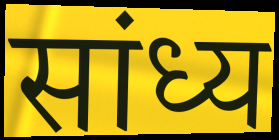
सांध्य